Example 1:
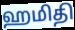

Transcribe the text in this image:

ஹமிதி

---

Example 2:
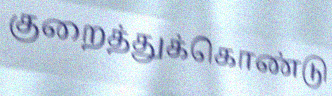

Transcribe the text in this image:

குறைத்துக்கொண்டு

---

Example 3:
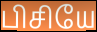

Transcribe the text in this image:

பிசியே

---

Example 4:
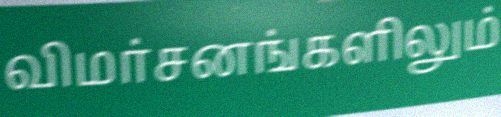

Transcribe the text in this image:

விமர்சனங்களிலும்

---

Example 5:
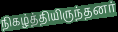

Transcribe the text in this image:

நிகழ்த்தியிருந்தனர்